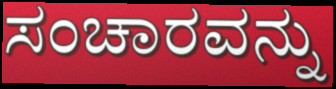
ಸಂಚಾರವನ್ನು